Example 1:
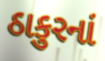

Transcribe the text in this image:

ઠાકુરનાં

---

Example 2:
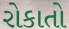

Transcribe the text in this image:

રોકાતો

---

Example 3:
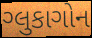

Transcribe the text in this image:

ગ્લુકાગોન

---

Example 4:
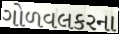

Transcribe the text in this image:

ગોળવલકરના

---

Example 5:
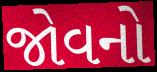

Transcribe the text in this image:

જોવનો